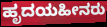
ಹೃದಯಹೀನರು